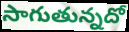
సాగుతున్నదో